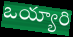
ఒయ్యారి